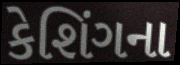
કેશિંગના